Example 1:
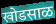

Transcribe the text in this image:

खोडसाळ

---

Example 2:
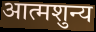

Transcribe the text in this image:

आत्मशुन्य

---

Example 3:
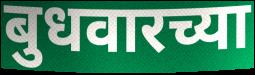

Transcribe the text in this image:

बुधवारच्या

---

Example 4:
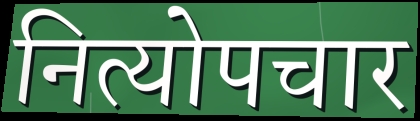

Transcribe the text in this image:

नित्योपचार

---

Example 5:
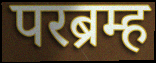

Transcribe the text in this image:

परब्रम्ह